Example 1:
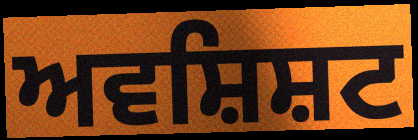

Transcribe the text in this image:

ਅਵਸ਼ਿਸ਼ਟ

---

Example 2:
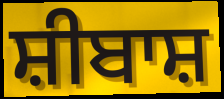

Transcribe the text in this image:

ਸ਼ੀਬਾਸ਼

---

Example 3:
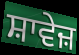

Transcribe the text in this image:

ਸ਼ਾਵੇਜ਼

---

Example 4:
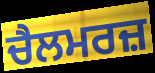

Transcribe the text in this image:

ਚੈਲਮਰਜ਼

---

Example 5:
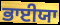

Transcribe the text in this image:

ਭਾਈਯਾ